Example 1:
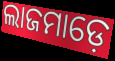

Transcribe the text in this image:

ଲାଜମାଡ଼େ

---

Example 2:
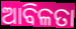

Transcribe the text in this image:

ଆବିଳତା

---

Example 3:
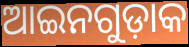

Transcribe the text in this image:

ଆଇନଗୁଡ଼ାକ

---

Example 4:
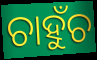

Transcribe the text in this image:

ଚାହୁଁଚ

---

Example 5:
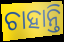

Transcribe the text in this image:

ଚାହାନ୍ତି